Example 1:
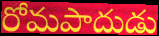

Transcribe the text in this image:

రోమపాదుడు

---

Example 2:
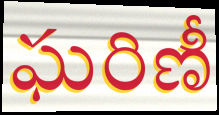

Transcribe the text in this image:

ఘరిణీ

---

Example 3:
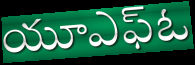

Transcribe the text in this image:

యూఎఫ్ఓ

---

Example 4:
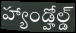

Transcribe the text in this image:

హ్యాండ్హోల్డ్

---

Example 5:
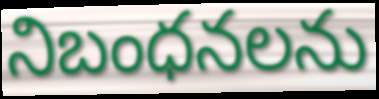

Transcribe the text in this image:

నిబంధనలను